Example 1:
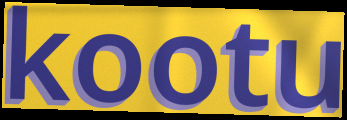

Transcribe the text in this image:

kootu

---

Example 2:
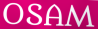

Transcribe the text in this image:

OSAM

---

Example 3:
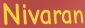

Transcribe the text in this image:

Nivaran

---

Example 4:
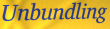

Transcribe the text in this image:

Unbundling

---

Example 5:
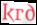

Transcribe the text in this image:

krd